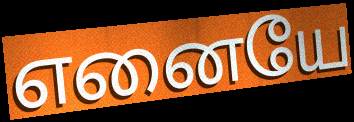
எனையே